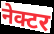
नेक्टर